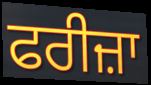
ਫਰੀਜ਼ਾ